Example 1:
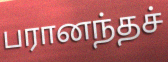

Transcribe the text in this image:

பரானந்தச்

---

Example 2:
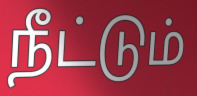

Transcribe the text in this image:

நீட்டும்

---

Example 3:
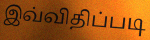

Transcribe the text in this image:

இவ்விதிப்படி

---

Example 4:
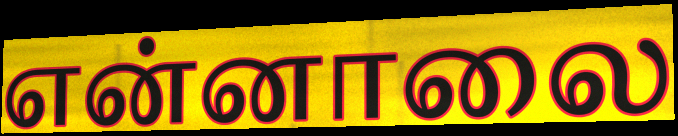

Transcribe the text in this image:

என்னாலை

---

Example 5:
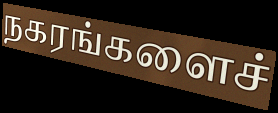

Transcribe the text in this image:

நகரங்களைச்